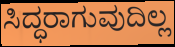
ಸಿದ್ಧರಾಗುವುದಿಲ್ಲ